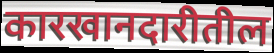
कारखानदारीतील